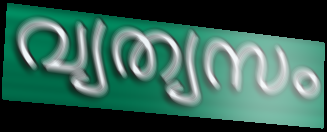
വ്യത്യസം